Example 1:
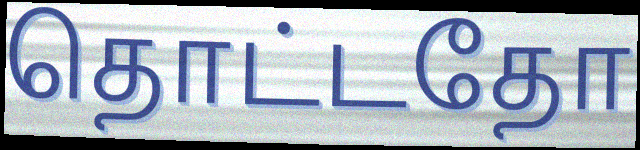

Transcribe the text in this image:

தொட்டதோ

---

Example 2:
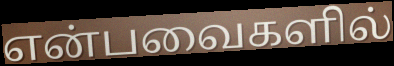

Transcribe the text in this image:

என்பவைகளில்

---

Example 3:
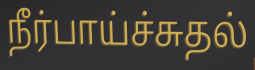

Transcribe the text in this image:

நீர்பாய்ச்சுதல்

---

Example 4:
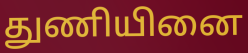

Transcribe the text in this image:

துணியினை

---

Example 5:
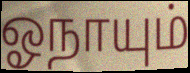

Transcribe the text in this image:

ஓநாயும்